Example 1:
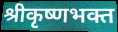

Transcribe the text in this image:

श्रीकृष्णभक्त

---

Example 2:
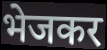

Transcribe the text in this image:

भेजकर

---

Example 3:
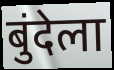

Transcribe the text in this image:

बुंदेला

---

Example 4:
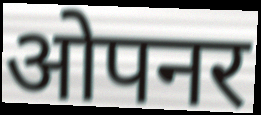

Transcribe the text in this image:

ओपनर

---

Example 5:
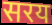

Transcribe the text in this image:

सरय